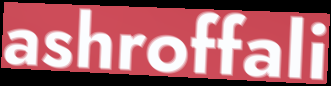
ashroffali